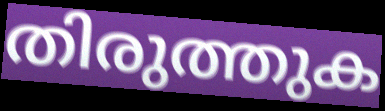
തിരുത്തുക